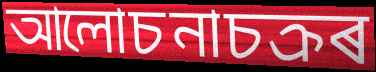
আলোচনাচক্ৰৰ